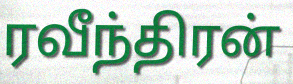
ரவீந்திரன்